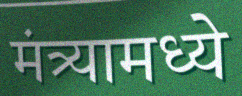
मंत्र्यामध्ये